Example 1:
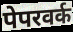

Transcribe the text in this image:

पेपरवर्क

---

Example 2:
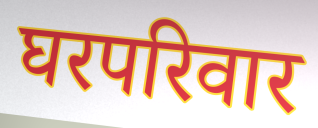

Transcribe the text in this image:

घरपरिवार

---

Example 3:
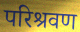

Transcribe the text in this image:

परिश्रवण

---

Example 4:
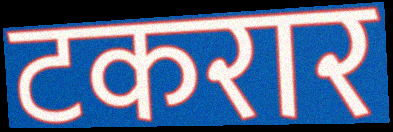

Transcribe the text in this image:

टकरार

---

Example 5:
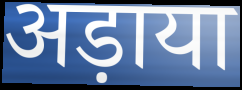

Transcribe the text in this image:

अड़ाया